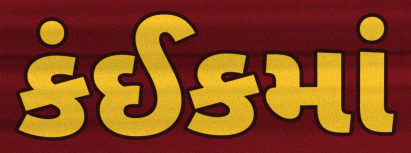
કંઈકમાં